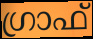
ഗ്രാഫ്